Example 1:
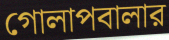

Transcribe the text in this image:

গোলাপবালার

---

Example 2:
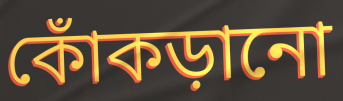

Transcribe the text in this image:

কোঁকড়ানো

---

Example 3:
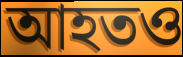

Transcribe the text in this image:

আহতও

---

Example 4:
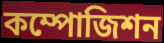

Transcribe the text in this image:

কম্পোজিশন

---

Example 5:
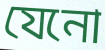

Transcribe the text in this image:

যেনো